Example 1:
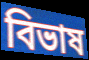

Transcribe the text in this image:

বিভাষ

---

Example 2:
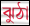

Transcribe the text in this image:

ঝুঠা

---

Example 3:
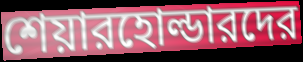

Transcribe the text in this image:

শেয়ারহোল্ডারদের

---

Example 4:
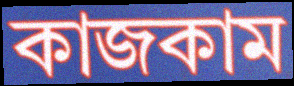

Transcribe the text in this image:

কাজকাম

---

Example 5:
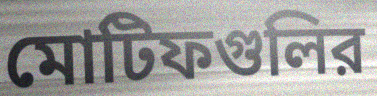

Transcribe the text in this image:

মোটিফগুলির